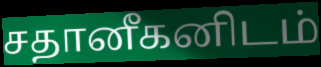
சதானீகனிடம்